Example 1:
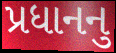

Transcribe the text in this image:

પ્રધાનનુ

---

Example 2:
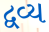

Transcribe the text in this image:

દ્વવ્ય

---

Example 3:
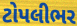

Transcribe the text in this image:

ટોપલીભર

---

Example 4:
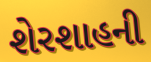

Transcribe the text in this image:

શેરશાહની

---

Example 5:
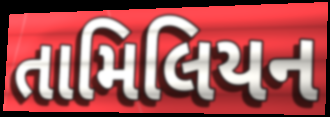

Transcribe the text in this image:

તામિલિયન